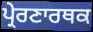
ਪ੍ਰੇਰਣਾਰਥਕ